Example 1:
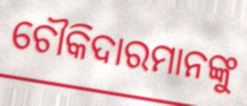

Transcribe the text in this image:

ଚୌକିଦାରମାନଙ୍କୁ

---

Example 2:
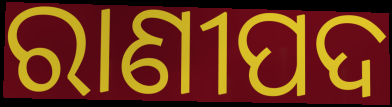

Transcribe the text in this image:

ରାଣୀପଦ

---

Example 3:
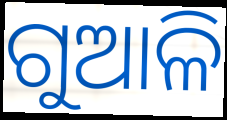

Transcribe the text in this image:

ଗୁଆଳି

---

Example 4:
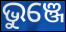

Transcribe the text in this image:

ଭୁଞ୍ଜେ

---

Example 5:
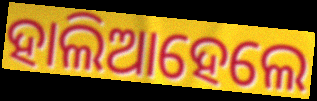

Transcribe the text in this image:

ହାଲିଆହେଲେ